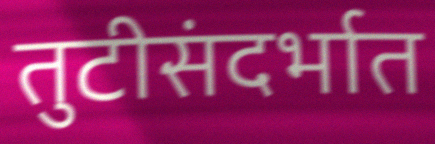
तुटीसंदर्भात